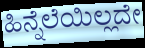
ಹಿನ್ನೆಲೆಯಿಲ್ಲದೇ